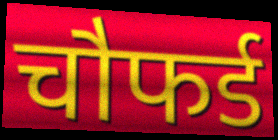
चौफर्ड